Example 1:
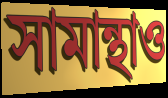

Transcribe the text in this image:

সামান্থাও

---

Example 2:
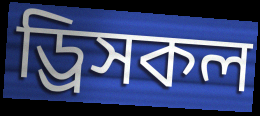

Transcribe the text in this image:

ড্রিসকল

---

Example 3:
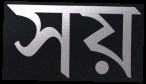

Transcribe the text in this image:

সয়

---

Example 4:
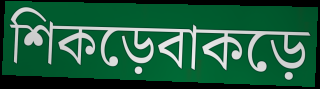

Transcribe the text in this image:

শিকড়েবাকড়ে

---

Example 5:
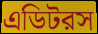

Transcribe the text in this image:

এডিটরস